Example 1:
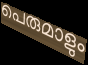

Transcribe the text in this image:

പെരുമാളും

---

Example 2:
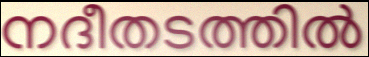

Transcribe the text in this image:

നദീതടത്തിൽ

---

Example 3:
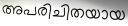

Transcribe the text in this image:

അപരിചിതയായ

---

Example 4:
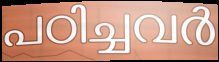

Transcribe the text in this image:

പഠിച്ചവർ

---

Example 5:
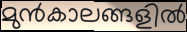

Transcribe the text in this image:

മുൻകാലങ്ങളിൽ